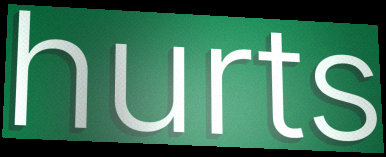
hurts